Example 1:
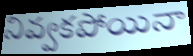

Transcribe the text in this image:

నివ్వకపోయినా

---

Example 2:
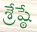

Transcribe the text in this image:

శ్రేష్ఠే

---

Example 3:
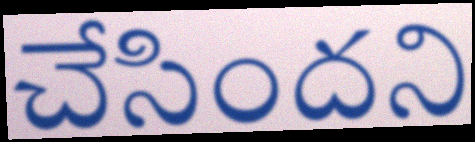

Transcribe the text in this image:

చేసిందని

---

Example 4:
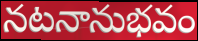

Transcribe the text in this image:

నటనానుభవం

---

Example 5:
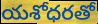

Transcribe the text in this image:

యశోధరతో